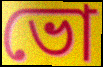
ভো